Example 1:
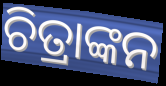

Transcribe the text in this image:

ଚିତ୍ରାଙ୍କନ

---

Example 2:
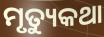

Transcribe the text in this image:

ମୃତ୍ୟୁକଥା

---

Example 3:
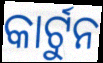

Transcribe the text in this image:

କାର୍ଟୁନ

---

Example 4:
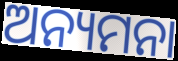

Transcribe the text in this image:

ଅନ୍ୟମନା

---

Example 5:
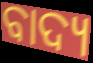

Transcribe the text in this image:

ବାଦ୍ଯ